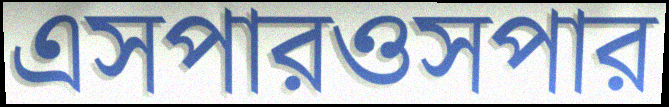
এসপারওসপার